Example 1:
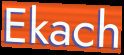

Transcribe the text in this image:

Ekach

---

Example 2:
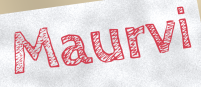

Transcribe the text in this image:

Maurvi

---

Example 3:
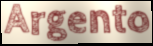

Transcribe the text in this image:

Argento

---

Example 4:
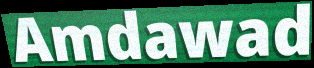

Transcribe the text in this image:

Amdawad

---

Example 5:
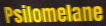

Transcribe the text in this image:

Psilomelane